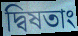
দ্বিষতাং